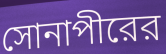
সোনাপীরের